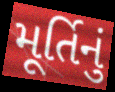
મૂર્તિનું